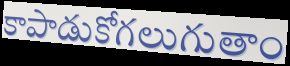
కాపాడుకోగలుగుతాం